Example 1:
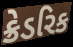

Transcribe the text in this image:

ક્રેડરિક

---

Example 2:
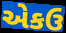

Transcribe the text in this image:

એકઉ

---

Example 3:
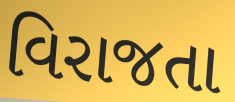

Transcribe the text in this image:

વિરાજતા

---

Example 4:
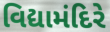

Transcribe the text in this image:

વિદ્યામંદિરે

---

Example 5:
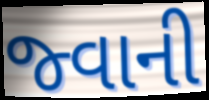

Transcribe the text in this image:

જ્વાની